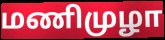
மணிமுழா